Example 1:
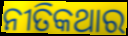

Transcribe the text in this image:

ନୀତିକଥାର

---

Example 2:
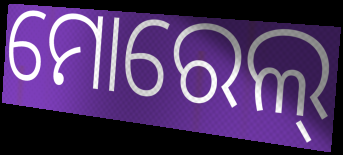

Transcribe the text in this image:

ମୋରେଲ୍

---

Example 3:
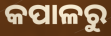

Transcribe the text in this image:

କପାଳରୁ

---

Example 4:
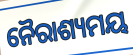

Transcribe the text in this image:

ନୈରାଶ୍ୟମୟ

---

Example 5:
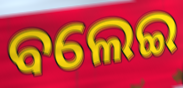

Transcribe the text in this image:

ବଲେଇ